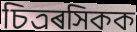
চিত্ৰৰসিকক